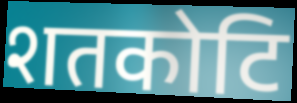
शतकोटि